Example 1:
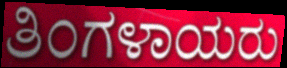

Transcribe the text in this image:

ತಿಂಗಳಾಯರು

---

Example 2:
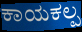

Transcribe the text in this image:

ಕಾಯಕಲ್ಪ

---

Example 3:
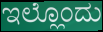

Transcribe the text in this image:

ಇಲ್ಲೊಂದು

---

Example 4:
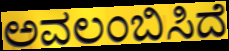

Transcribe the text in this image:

ಅವಲಂಬಿಸಿದೆ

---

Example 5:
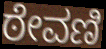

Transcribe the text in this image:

ಠೇವಣಿ